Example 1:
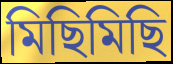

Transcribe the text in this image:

মিছিমিছি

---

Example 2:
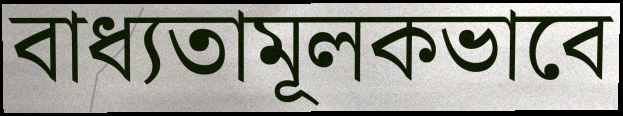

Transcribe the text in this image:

বাধ্যতামূলকভাবে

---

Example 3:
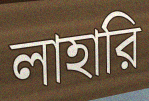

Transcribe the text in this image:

লাহারি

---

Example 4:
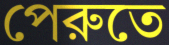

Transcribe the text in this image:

পেরুতে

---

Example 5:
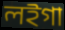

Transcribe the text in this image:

লইগা